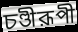
চণ্ডীরূপী